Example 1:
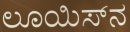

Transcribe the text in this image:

ಲೂಯಿಸ್‌ನ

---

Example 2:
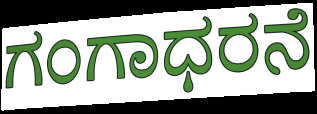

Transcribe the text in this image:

ಗಂಗಾಧರನೆ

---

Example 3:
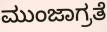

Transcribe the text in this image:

ಮುಂಜಾಗ್ರತೆ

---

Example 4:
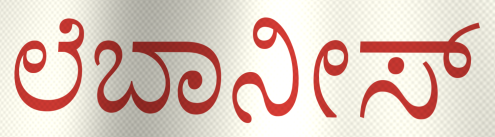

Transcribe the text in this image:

ಲೆಬಾನೀಸ್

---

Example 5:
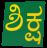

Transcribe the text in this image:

ಶಿಕ್ಷ